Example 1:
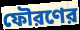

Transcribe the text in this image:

ফৌরণের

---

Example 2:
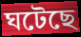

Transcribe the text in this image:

ঘটেছে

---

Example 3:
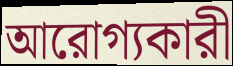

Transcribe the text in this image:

আরোগ্যকারী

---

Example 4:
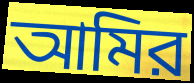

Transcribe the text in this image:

আমির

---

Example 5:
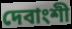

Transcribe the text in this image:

দেবাংশী